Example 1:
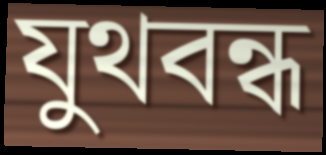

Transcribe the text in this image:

যুথবন্ধ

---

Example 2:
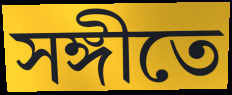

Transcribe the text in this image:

সঙ্গীতে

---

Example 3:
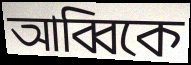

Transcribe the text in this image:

আব্বিকে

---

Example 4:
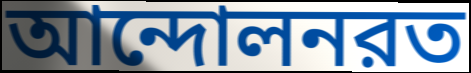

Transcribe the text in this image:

আন্দোলনরত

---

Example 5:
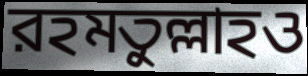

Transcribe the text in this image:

রহমতুল্লাহও